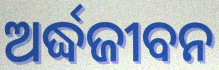
ଅର୍ଦ୍ଧଜୀବନ